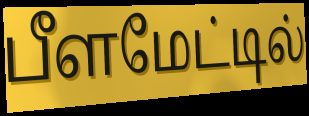
பீளமேட்டில்